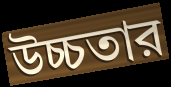
উচ্চতার